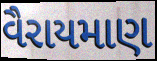
વૈરાયમાણ